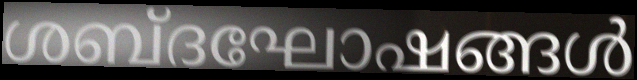
ശബ്ദഘോഷങ്ങൾ